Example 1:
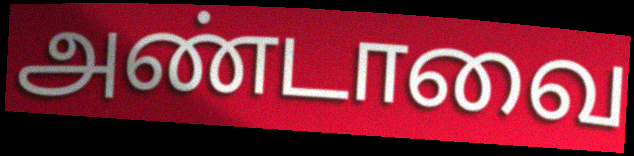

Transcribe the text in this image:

அண்டாவை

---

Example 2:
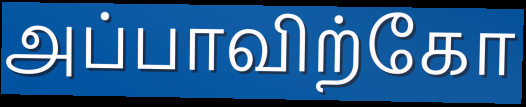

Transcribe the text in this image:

அப்பாவிற்கோ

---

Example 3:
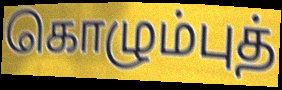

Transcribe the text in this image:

கொழும்புத்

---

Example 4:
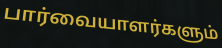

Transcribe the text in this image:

பார்வையாளர்களும்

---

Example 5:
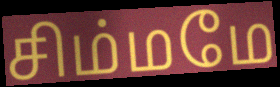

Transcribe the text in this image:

சிம்மமே